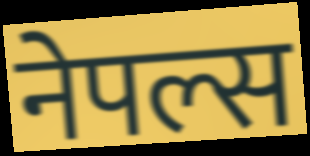
नेपल्स